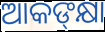
ଆକଙ୍‍କ୍ଷା